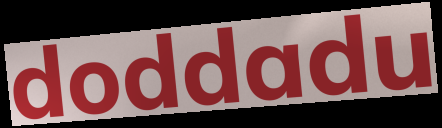
doddadu